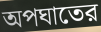
অপঘাতের